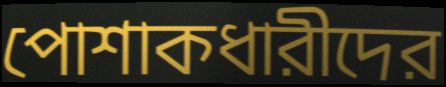
পোশাকধারীদের